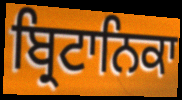
ਬ੍ਰਿਟਾਨਿਕਾ